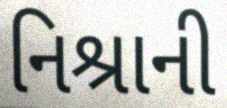
નિશ્રાની